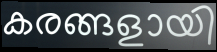
കരങ്ങളായി